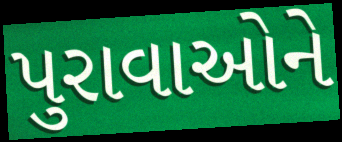
પુરાવાઓને